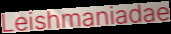
Leishmaniadae